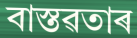
বাস্তৱতাৰ